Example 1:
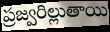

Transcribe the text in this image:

ప్రజ్వరిల్లుతాయి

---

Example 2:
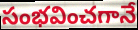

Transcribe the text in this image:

సంభవించగానే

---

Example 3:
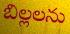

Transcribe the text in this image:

బిల్లలను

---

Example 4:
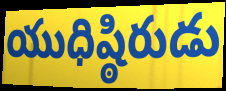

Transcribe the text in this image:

యుధిష్ఠిరుడు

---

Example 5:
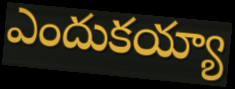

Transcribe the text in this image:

ఎందుకయ్యా